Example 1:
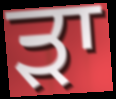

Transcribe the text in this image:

ੜਾ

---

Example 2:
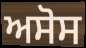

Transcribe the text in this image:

ਅਸੋਸ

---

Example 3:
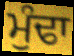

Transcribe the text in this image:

ਮੁੰਢਾ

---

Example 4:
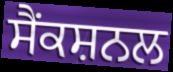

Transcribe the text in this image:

ਸੈਂਕਸ਼ਨਲ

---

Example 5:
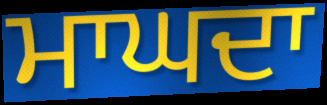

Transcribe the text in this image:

ਮਾਘਦਾ